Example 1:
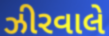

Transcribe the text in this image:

ઝીરવાલે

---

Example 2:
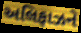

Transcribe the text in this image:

અલિફાઝને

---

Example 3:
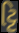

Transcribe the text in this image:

ટ્ટિ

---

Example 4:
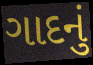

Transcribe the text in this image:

ગાદનું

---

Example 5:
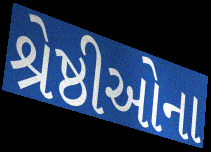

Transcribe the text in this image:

શ્રેષ્ઠીઓના